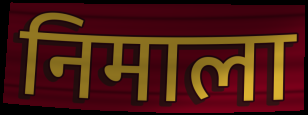
निमाला